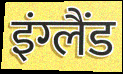
इंग्‍लैंड